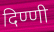
दिण्णी